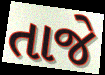
તાજે